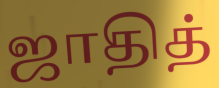
ஜாதித்